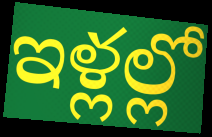
ఇళ్లల్లో